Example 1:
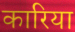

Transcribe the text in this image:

कारिया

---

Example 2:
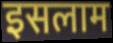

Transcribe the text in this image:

इसलाम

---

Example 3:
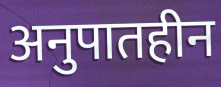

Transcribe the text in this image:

अनुपातहीन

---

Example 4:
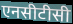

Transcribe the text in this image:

एनसीटीसी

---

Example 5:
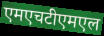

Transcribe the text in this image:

एमएचटीएमएल